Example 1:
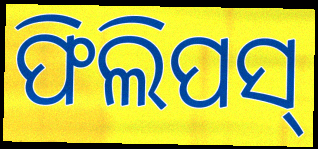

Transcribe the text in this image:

ଫିଲିପସ୍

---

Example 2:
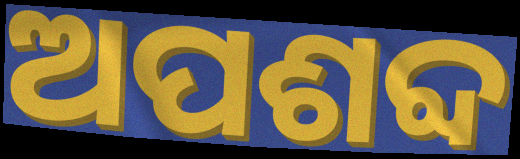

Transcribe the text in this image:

ଅପଶବ୍ଦ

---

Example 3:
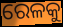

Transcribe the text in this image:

ରେଳକୁ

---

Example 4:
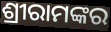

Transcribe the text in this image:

ଶ୍ରୀରାମଙ୍କର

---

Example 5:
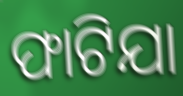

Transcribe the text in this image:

ଫାଟିଯା